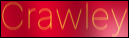
Crawley